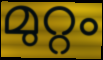
മുറ്റം